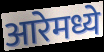
आरेमध्ये